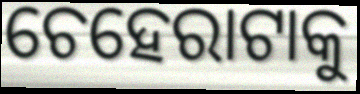
ଚେହେରାଟାକୁ